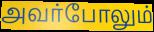
அவர்போலும்